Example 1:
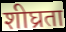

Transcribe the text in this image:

शीघ्रता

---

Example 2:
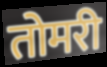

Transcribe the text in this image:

तोमरी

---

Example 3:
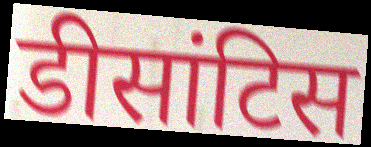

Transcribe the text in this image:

डीसांटिस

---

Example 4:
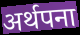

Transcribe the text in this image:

अर्थपना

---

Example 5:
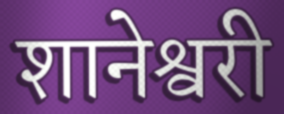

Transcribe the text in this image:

शानेश्वरी